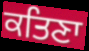
ਕਤਿਣਾ